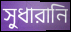
সুধারানি